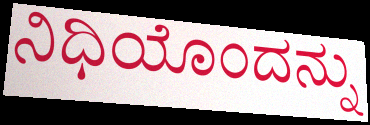
ನಿಧಿಯೊಂದನ್ನು